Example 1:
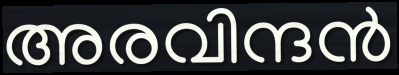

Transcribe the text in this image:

അരവിന്ദൻ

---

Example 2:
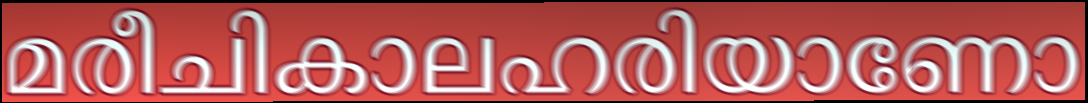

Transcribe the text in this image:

മരീചികാലഹരിയാണോ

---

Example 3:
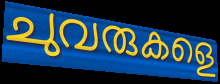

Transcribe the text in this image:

ചുവരുകളെ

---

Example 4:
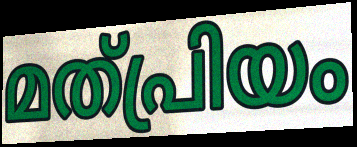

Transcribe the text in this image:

മത്പ്രിയം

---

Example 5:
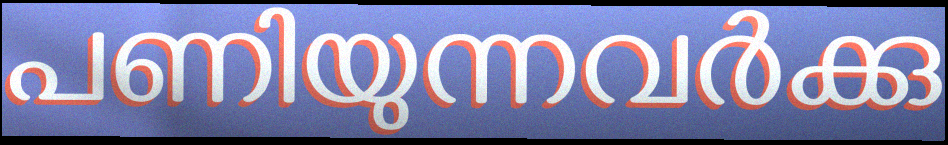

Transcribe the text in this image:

പണിയുന്നവർക്കു